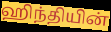
ஹிந்தியின்